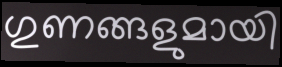
ഗുണങ്ങളുമായി